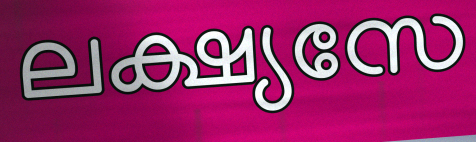
ലക്ഷ്യസേ